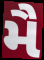
મૈ